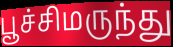
பூச்சிமருந்து